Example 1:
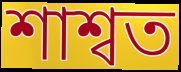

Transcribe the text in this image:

শাশ্বত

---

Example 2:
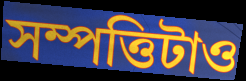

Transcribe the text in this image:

সম্পত্তিটাও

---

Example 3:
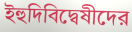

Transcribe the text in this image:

ইহুদিবিদ্বেষীদের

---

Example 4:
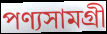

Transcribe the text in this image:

পণ্যসামগ্রী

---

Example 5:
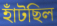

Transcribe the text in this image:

হাঁটছিল